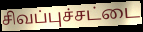
சிவப்புச்சட்டை